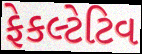
ફેકલ્ટેટિવ